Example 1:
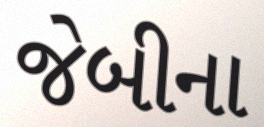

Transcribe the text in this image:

જેબીના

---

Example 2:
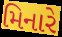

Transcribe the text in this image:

મિનારે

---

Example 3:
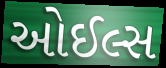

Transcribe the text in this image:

ઓઈલ્સ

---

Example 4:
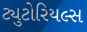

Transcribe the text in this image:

ટ્યુટોરિયલ્સ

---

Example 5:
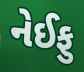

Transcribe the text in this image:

નેઈફુ